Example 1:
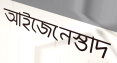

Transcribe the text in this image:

আইজেনেস্তাদ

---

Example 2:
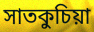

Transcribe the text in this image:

সাতকুচিয়া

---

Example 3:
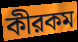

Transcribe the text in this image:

কীরকম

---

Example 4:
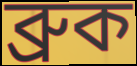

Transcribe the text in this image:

ব্রুক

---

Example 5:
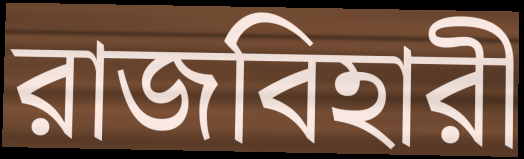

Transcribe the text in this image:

রাজবিহারী